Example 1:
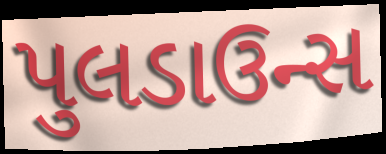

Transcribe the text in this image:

પુલડાઉન્સ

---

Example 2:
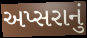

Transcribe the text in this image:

અપ્સરાનું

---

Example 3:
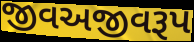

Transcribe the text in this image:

જીવઅજીવરૂપ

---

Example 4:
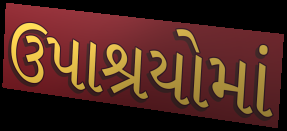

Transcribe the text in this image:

ઉપાશ્રયોમાં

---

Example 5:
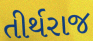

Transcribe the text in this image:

તીર્થરાજ